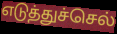
எடுத்துச்செல்